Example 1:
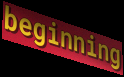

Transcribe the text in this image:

beginning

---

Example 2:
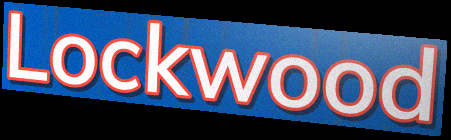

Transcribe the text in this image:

Lockwood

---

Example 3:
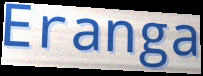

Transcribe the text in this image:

Eranga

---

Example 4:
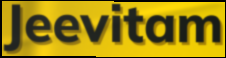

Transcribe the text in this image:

Jeevitam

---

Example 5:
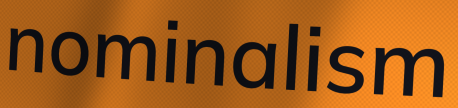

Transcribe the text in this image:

nominalism